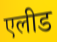
एलीड